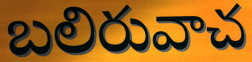
బలిరువాచ